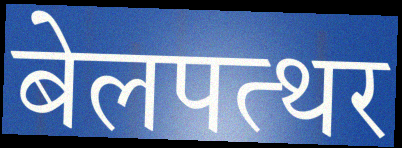
बेलपत्थर